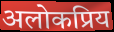
अलोकप्रिय